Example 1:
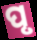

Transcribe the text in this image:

ପୃ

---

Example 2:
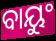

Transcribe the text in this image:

ବାୟୁଂ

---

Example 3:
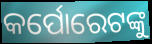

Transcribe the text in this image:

କର୍ପୋରେଟଙ୍କୁ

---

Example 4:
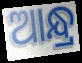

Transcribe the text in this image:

ଆନ୍ଧ୍ର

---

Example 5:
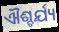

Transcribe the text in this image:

ଐଶ୍ଚର୍ଯ୍ୟ